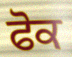
ਫੋਕ